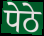
पेठे